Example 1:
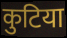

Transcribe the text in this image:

कुटिया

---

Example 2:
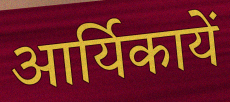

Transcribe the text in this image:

आर्यिकायें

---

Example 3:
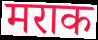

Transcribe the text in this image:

मराक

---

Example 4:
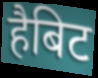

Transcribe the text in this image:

हैबिट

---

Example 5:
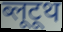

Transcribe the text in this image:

ब्‍लूटूथ